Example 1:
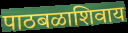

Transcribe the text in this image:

पाठबळाशिवाय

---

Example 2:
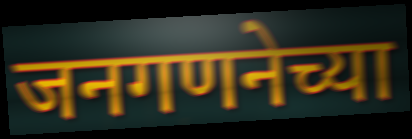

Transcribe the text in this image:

जनगणनेच्या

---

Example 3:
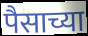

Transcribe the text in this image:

पैसाच्या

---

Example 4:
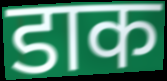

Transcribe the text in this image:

डाक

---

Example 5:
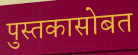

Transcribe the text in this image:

पुस्तकासोबत